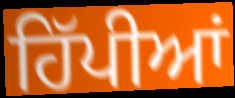
ਹਿੱਪੀਆਂ